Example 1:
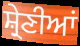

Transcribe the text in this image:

ਸ਼੍ਰੇਣੀਆਂ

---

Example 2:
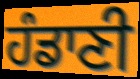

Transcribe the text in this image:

ਹੰਡਾਣੀ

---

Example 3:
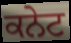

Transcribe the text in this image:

ਕਨੇਟ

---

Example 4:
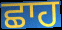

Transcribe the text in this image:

ਛਾਹ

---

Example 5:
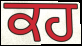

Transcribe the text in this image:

ਕਹ